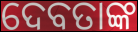
ଦେବତାଙ୍କ